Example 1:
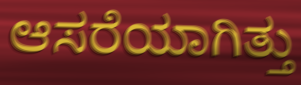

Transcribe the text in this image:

ಆಸರೆಯಾಗಿತ್ತು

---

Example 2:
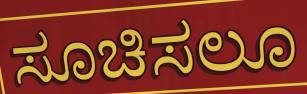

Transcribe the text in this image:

ಸೂಚಿಸಲೂ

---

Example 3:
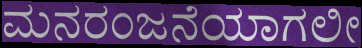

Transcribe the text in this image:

ಮನರಂಜನೆಯಾಗಲೀ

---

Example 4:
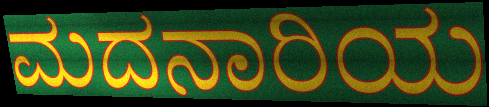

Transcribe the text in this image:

ಮದನಾರಿಯ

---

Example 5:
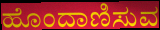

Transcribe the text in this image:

ಹೊಂದಾಣಿಸುವ